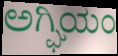
ಅಗ್ಘಿಯಂ